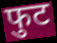
फुट